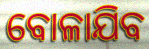
ବୋଳାଯିବ